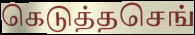
கெடுத்தசெங்